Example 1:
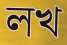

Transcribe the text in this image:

লখ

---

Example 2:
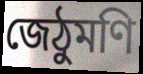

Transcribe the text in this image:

জেঠুমণি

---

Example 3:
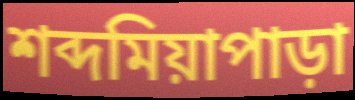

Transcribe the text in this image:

শব্দমিয়াপাড়া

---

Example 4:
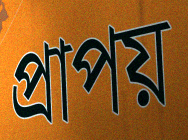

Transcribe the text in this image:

প্রাপয়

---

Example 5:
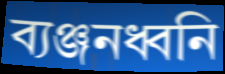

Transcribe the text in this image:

ব্যঞ্জনধ্বনি